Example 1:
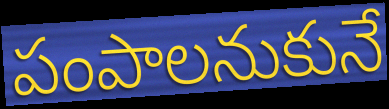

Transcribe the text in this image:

పంపాలనుకునే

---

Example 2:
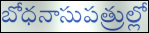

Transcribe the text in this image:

బోధనాసుపత్రుల్లో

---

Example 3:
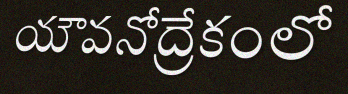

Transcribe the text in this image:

యౌవనోద్రేకంలో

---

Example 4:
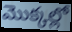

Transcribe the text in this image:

మొక్కల్లో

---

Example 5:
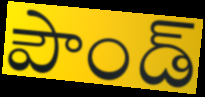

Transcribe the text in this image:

పౌండ్